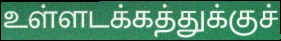
உள்ளடக்கத்துக்குச்